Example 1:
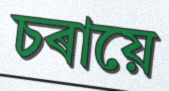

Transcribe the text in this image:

চৰায়ে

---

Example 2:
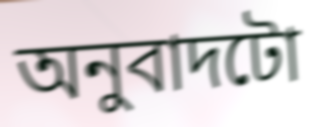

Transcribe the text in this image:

অনুবাদটো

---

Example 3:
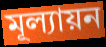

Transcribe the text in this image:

মূল্যায়ন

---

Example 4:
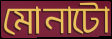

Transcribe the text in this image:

মোনাটো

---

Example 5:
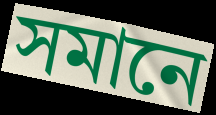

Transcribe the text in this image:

সমানে